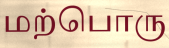
மற்பொரு